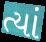
ત્‍યાં